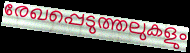
രേഖപ്പെടുത്തലുകളും